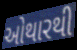
ઓથારથી